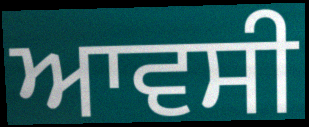
ਆਵਸੀ